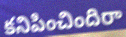
కనిపించిందిరా